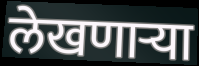
लेखणाऱ्या